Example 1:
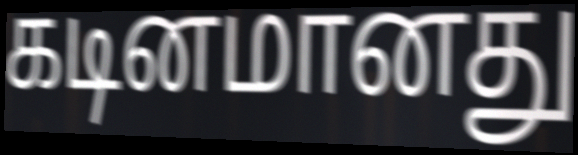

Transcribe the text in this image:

கடினமானது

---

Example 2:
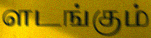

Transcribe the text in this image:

ளடங்கும்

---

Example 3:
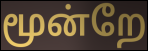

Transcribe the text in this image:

மூன்றே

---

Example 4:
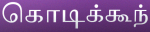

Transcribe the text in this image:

கொடிக்கூந்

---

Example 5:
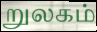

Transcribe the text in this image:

றுலகம்